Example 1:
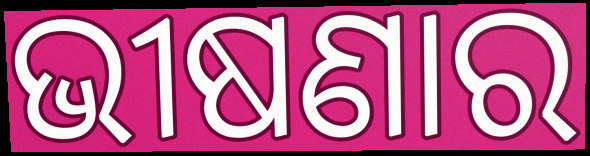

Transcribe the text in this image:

ଭୀଷଣାର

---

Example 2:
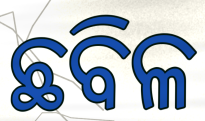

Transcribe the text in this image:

ଛବିଳ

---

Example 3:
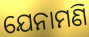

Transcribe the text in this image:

ଯେନାମଣି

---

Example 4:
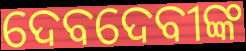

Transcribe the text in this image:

ଦେବଦେବୀଙ୍କ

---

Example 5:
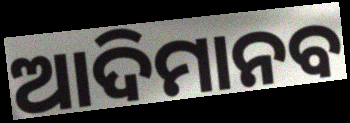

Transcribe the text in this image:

ଆଦିମାନବ